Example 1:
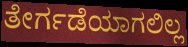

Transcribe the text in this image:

ತೇರ್ಗಡೆಯಾಗಲಿಲ್ಲ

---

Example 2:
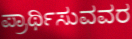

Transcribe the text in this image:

ಪ್ರಾರ್ಥಿಸುವವರ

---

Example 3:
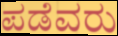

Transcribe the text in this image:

ಪಡೆವರು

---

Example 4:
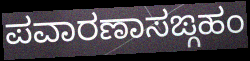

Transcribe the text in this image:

ಪವಾರಣಾಸಙ್ಗಹಂ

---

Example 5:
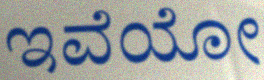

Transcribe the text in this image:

ಇವೆಯೋ